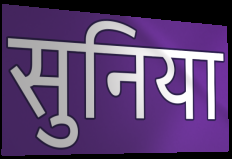
सुनिया